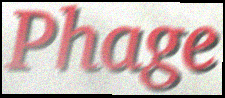
Phage